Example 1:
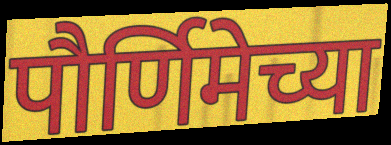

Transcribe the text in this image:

पौर्णिमेच्या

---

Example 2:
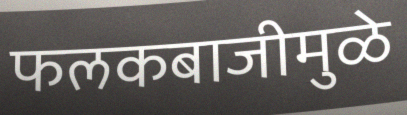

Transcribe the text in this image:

फलकबाजीमुळे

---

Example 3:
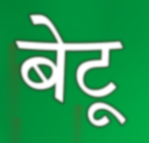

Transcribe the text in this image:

बेटू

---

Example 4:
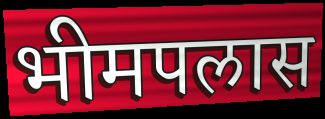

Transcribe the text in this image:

भीमपलास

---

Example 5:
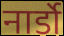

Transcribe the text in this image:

नार्डो